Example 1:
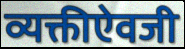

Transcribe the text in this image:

व्यक्तीऐवजी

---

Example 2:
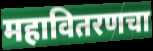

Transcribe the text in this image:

महावितरणचा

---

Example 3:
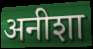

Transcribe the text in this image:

अनीशा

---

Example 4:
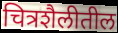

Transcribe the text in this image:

चित्रशैलीतील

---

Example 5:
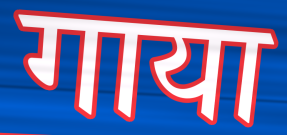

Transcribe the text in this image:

गाया